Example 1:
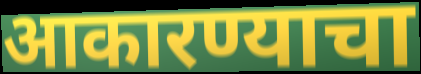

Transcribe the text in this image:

आकारण्याचा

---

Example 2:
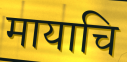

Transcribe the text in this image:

मायाचि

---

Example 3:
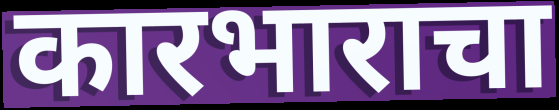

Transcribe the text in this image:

कारभाराचा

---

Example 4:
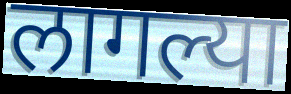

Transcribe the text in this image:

लागल्या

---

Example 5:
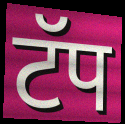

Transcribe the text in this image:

टॅप